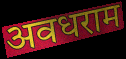
अवधराम